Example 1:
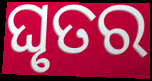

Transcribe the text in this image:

ଘୃତର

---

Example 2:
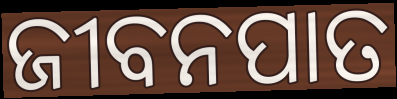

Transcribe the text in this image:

ଜୀବନପାତ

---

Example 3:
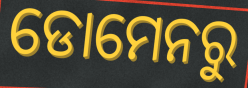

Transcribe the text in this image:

ଡୋମେନରୁ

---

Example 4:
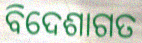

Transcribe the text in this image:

ବିଦେଶାଗତ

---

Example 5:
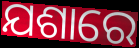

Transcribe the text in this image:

ଯଶାରେ